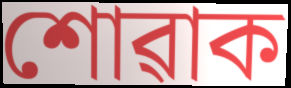
শোৱাক